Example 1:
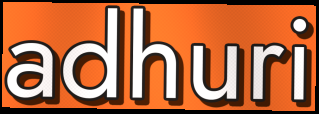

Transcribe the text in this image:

adhuri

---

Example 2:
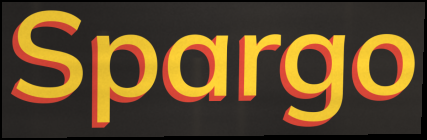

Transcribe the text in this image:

Spargo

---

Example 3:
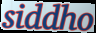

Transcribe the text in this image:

siddho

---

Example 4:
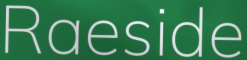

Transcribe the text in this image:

Raeside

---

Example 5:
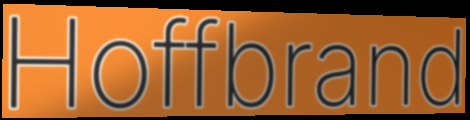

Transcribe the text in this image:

Hoffbrand